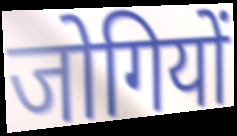
जोगियों